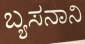
ಬ್ಯಸನಾನಿ